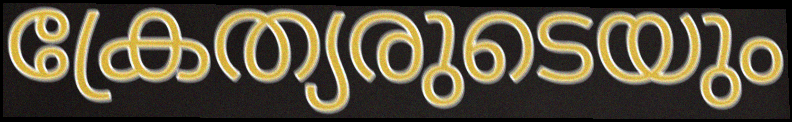
ക്രേത്യരുടെയും